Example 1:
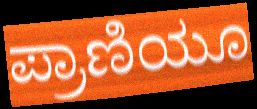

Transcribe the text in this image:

ಪ್ರಾಣಿಯೂ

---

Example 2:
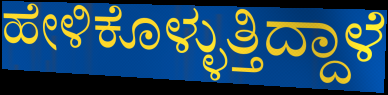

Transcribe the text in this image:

ಹೇಳಿಕೊಳ್ಳುತ್ತಿದ್ದಾಳೆ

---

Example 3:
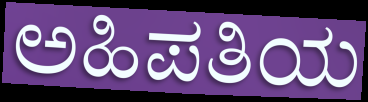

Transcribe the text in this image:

ಅಹಿಪತಿಯ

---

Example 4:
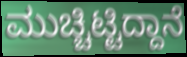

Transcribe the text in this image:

ಮುಚ್ಚಿಟ್ಟಿದ್ದಾನೆ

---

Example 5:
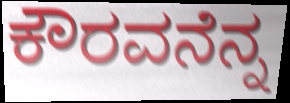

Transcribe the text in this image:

ಕೌರವನೆನ್ನ